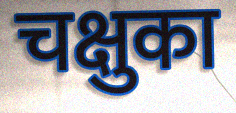
चक्षुका